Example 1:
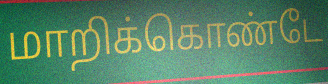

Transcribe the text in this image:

மாறிக்கொண்டே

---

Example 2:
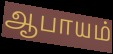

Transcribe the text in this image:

ஆபாயம்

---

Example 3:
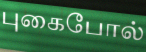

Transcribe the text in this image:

புகைபோல்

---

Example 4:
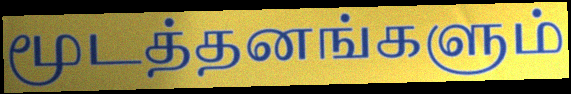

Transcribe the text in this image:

மூடத்தனங்களும்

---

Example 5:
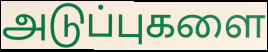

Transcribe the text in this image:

அடுப்புகளை